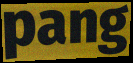
pang